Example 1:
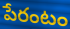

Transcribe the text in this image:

పేరంటం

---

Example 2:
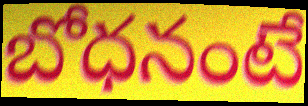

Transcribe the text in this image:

బోధనంటే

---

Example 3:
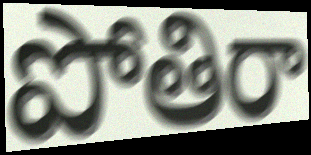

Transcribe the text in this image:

పోతిరా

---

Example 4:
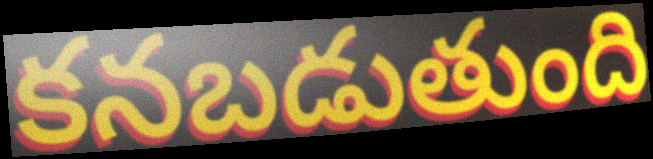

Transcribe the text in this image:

కనబడుతుంది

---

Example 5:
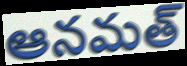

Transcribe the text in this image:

ఆనమత్